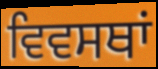
ਵਿਵਸਥਾਂ